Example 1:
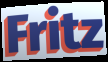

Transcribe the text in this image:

Fritz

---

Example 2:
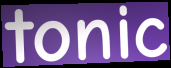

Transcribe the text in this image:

tonic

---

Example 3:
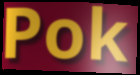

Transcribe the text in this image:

Pok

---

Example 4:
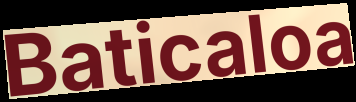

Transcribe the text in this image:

Baticaloa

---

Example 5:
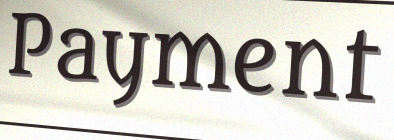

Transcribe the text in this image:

Payment